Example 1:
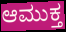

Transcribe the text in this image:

ಆಮುಕ್ತ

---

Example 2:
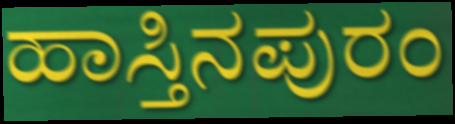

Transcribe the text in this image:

ಹಾಸ್ತಿನಪುರಂ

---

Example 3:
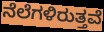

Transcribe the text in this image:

ನೆಲೆಗಳಿರುತ್ತವೆ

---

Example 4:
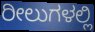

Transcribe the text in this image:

ರೀಲುಗಳಲ್ಲಿ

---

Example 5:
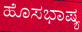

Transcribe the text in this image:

ಹೊಸಭಾಷ್ಯ